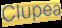
Clupea